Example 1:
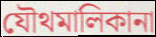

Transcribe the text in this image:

যৌথমালিকানা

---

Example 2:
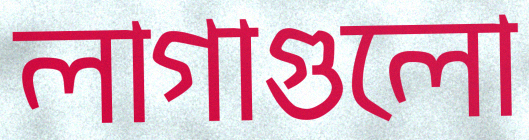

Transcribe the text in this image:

লাগাগুলো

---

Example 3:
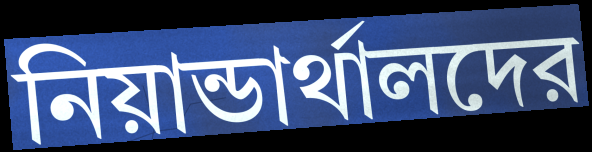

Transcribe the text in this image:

নিয়ান্ডার্থালদের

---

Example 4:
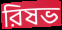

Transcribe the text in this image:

রিষভ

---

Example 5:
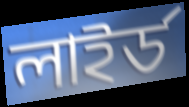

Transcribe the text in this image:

লাইর্ড